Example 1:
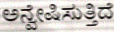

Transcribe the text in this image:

ಅನ್ವೇಷಿಸುತ್ತಿದೆ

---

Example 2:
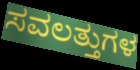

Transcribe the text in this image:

ಸವಲತ್ತುಗಳ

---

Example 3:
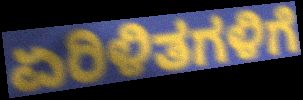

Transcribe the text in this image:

ಏರಿಳಿತಗಳಿಗೆ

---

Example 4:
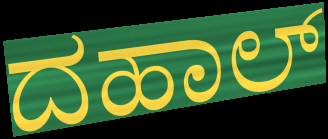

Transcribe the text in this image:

ದಹಾಲ್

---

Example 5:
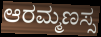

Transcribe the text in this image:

ಆರಮ್ಮಣಸ್ಸ